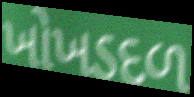
ખોખડદળ